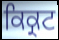
ਕਿਕ੍ਰਟ